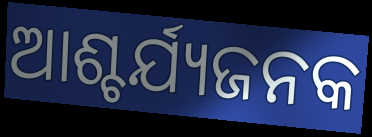
ଆଶ୍ଚର୍ଯ୍ୟଜନକ